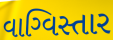
વાગ્વિસ્તાર